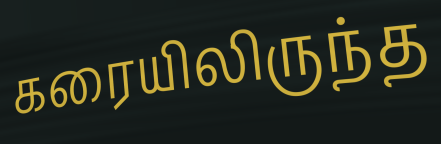
கரையிலிருந்த